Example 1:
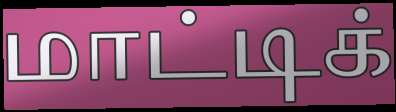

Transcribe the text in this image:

மாட்டிக்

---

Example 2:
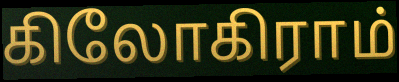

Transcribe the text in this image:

கிலோகிராம்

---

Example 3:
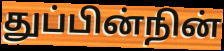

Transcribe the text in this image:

துப்பின்நின்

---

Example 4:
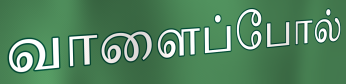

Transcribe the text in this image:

வாளைப்போல்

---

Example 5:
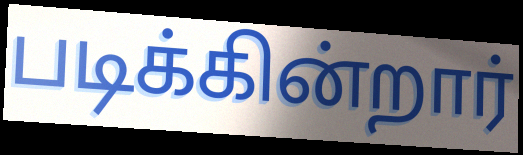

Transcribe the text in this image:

படிக்கின்றார்